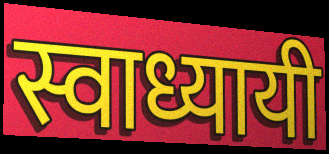
स्वाध्यायी